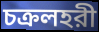
চক্রলহরী